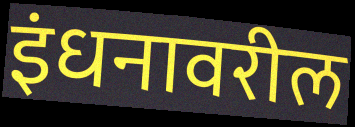
इंधनावरील